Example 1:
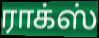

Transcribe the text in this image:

ராக்ஸ்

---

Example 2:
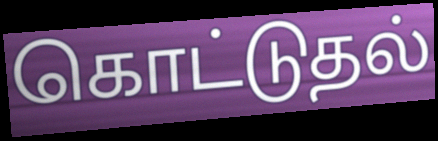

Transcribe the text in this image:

கொட்டுதல்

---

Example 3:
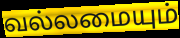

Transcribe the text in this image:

வல்லமையும்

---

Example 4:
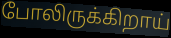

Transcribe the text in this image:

போலிருக்கிறாய்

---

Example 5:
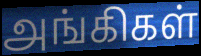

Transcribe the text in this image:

அங்கிகள்